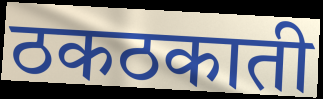
ठकठकाती